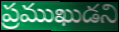
ప్రముఖుడని